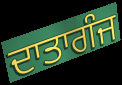
ਦਾਤਾਗੰਜ